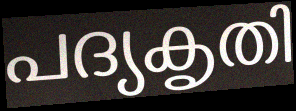
പദ്യകൃതി